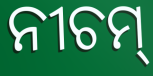
ନୀଚମ୍